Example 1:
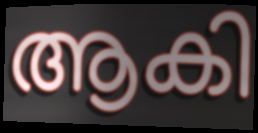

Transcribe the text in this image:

ആകി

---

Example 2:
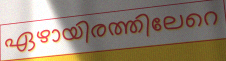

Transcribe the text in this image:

ഏഴായിരത്തിലേറെ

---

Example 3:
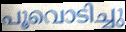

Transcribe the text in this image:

പൂവൊടിച്ചു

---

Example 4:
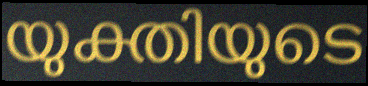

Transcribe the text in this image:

യുക്തിയുടെ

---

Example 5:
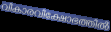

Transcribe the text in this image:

വികാരവിക്ഷോഭത്തിൽ